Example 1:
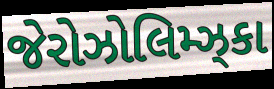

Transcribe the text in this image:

જેરોઝોલિમ્ઝ્કા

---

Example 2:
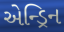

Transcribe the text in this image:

એન્ડ્રિન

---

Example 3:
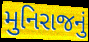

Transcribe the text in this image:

મુનિરાજનું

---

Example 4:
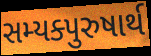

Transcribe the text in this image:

સમ્યક્પુરુષાર્થ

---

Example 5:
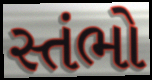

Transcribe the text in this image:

સ્તંભો